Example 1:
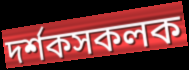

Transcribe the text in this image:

দৰ্শকসকলক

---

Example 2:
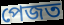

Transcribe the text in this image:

পেজত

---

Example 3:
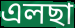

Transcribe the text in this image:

এলছা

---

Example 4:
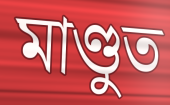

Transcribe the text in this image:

মাণ্ডুত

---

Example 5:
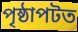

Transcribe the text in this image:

পৃষ্ঠাপটত